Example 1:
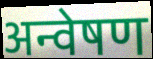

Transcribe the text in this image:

अन्वेषण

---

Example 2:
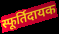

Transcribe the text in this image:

स्फूर्तिदायक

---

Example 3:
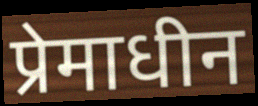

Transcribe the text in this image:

प्रेमाधीन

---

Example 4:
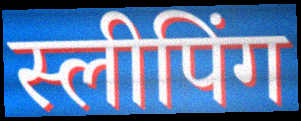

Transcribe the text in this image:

स्लीपिंग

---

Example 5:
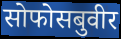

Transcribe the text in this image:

सोफोसबुवीर